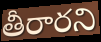
తీరారని